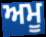
ਅਮੂ